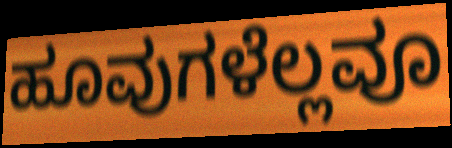
ಹೂವುಗಳೆಲ್ಲವೂ